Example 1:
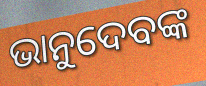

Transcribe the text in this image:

ଭାନୁଦେବଙ୍କ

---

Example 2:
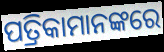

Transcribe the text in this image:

ପତ୍ରିକାମାନଙ୍କରେ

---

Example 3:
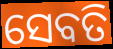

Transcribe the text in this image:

ସେବତି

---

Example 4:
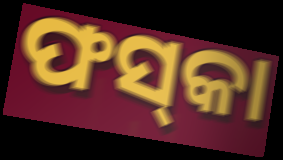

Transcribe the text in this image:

ଫସ୍‌କା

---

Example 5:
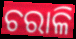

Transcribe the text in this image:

ଚରାଳି